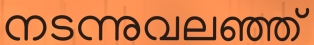
നടന്നുവലഞ്ഞ്